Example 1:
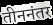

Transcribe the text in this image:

तीननंतर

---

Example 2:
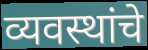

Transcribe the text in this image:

व्यवस्थांचे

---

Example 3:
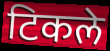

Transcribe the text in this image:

टिकले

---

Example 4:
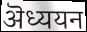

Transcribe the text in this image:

ऄध्ययन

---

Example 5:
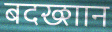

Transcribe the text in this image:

बदख्शान